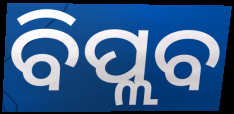
ବିପ୍ଲବ